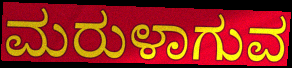
ಮರುಳಾಗುವ